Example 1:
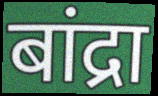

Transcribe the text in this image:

बांद्रा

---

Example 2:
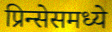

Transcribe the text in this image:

प्रिन्सेसमध्ये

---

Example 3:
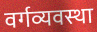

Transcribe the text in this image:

वर्गव्यवस्था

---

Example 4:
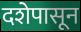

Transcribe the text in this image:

दशेपासून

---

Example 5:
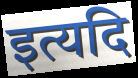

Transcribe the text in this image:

इत्यदि